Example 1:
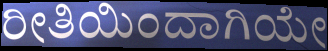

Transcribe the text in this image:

ರೀತಿಯಿಂದಾಗಿಯೇ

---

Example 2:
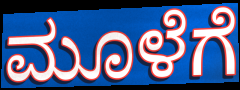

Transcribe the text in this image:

ಮೂಳೆಗೆ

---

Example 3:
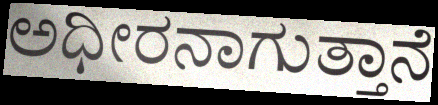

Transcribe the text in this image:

ಅಧೀರನಾಗುತ್ತಾನೆ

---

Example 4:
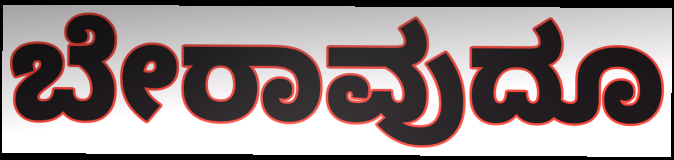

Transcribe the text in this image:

ಬೇರಾವುದೂ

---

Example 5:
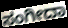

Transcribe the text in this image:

ಸಂಗೀದಾ